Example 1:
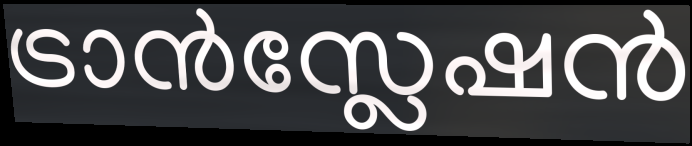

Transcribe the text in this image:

ട്രാൻസ്ലേഷൻ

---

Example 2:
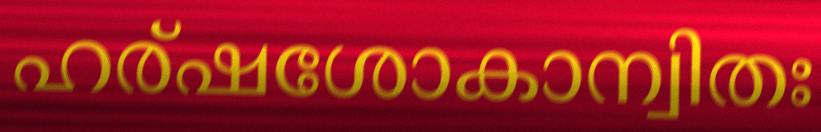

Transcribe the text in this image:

ഹര്ഷശോകാന്വിതഃ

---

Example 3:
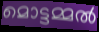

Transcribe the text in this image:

മൊട്ടമ്മൽ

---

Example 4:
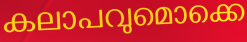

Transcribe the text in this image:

കലാപവുമൊക്കെ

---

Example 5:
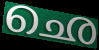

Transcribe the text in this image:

ഛെ